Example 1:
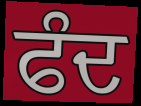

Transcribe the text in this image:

ਫੰਦ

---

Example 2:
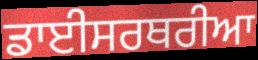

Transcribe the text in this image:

ਡਾਈਸਰਥਰੀਆ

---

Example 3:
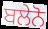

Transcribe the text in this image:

ਬਲੇਨੋ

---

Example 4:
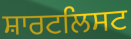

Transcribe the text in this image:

ਸ਼ਾਰਟਲਿਸਟ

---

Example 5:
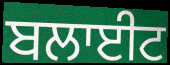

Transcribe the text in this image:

ਬਲਾਈਟ